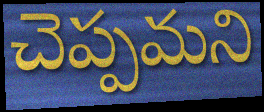
చెప్పమని